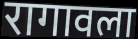
रागावला